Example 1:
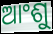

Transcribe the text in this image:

ଆଂଶୁ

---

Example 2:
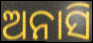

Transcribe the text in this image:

ଅନାସି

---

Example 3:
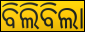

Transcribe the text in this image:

ବିଲିବିଲା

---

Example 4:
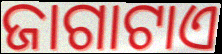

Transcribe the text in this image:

ଜାଗାଟାଏ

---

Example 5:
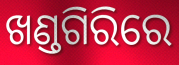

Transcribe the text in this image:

ଖଣ୍ଡଗିରିରେ